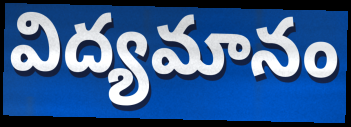
విద్యమానం